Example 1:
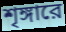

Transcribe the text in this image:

শৃঙ্গারে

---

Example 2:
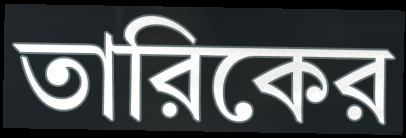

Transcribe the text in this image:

তারিকের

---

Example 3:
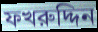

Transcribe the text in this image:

ফখরুদ্দিন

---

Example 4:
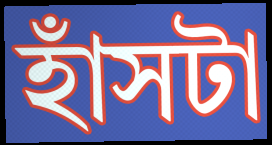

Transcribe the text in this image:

হাঁসটা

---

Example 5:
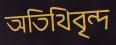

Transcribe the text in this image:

অতিথিবৃন্দ